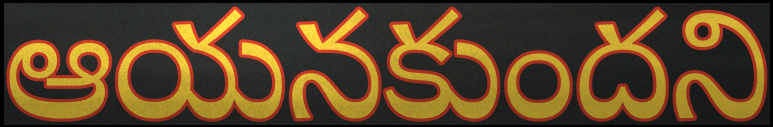
ఆయనకుందని